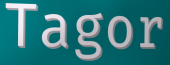
Tagor